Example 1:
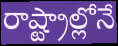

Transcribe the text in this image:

రాష్ట్రాల్లోనే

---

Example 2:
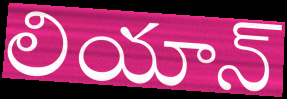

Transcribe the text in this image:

లియాన్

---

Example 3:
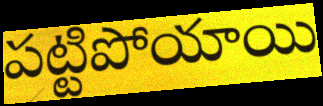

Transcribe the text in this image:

పట్టిపోయాయి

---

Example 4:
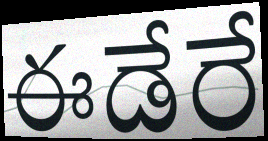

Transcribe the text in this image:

ఈడేరే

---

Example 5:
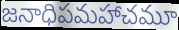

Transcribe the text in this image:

జనాధిపమహాచమూ